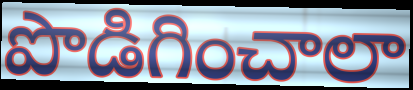
పొడిగించాలా